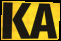
KA